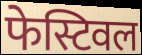
फेस्टिवल